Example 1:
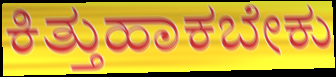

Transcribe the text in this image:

ಕಿತ್ತುಹಾಕಬೇಕು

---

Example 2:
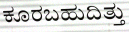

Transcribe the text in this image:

ಕೂರಬಹುದಿತ್ತು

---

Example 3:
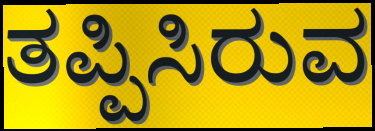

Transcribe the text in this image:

ತಪ್ಪಿಸಿರುವ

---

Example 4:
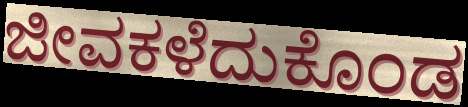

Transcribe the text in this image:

ಜೀವಕಳೆದುಕೊಂಡ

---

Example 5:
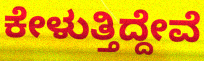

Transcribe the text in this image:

ಕೇಳುತ್ತಿದ್ದೇವೆ